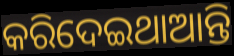
କରିଦେଇଥାଆନ୍ତି